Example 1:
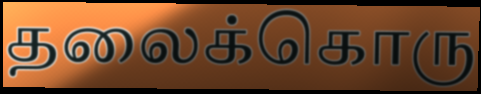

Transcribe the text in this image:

தலைக்கொரு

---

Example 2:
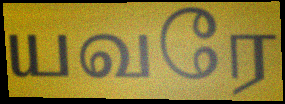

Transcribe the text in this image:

யவரே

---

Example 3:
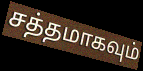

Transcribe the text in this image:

சத்தமாகவும்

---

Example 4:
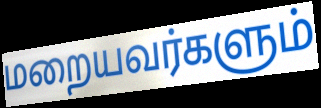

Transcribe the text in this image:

மறையவர்களும்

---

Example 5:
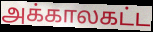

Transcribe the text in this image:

அக்காலகட்ட